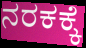
ನರಕಕ್ಕೆ